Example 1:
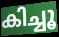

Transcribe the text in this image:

കിച്ചൂ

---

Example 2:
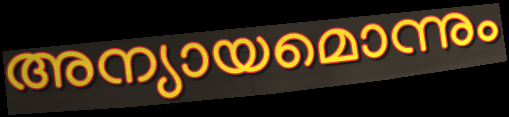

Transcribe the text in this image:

അന്യായമൊന്നും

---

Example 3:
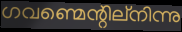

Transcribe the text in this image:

ഗവണ്മെന്റില്നിന്നു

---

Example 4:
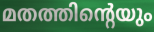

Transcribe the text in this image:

മതത്തിന്റെയും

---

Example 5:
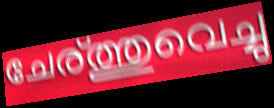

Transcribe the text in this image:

ചേര്ത്തുവെച്ചു